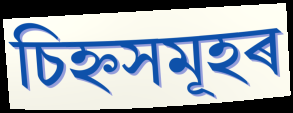
চিহ্নসমূহৰ